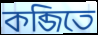
কব্জিতে